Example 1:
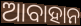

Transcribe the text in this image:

ଆବାହାନ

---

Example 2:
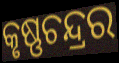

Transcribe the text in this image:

କୃଷ୍ଣଚନ୍ଦ୍ରର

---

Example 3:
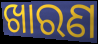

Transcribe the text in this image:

ଖାରଣ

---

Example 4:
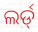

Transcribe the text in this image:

ଲର୍ଡ୍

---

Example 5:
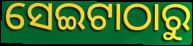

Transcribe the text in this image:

ସେଇଟାଠାରୁ